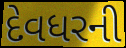
દેવધરની